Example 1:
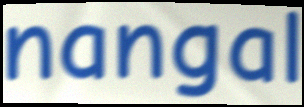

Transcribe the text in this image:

nangal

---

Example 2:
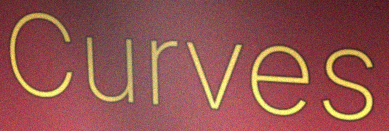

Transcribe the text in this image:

Curves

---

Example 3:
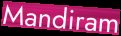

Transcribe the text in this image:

Mandiram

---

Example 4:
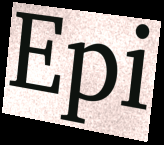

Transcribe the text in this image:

Epi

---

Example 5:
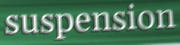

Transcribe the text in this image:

suspension